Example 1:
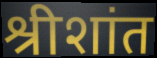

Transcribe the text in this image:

श्रीशांत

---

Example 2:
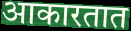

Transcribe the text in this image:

आकारतात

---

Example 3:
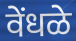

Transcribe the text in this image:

वेंधळे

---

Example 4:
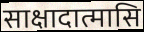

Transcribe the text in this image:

साक्षादात्मासि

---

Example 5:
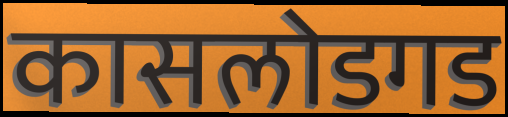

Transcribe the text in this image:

कासलोडगड